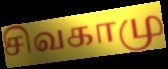
சிவகாமு